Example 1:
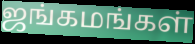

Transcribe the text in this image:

ஜங்கமங்கள்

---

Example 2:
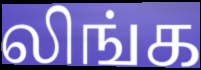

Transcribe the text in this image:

லிங்க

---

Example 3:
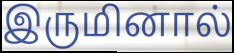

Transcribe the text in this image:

இருமினால்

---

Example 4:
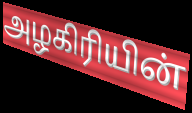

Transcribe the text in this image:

அழகிரியின்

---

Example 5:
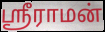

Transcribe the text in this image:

ஸ்ரீராமன்